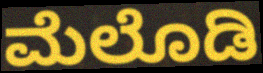
ಮೆಲೊಡಿ